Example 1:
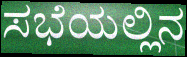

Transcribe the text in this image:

ಸಭೆಯಲ್ಲಿನ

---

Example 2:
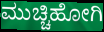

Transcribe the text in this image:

ಮುಚ್ಚಿಹೋಗಿ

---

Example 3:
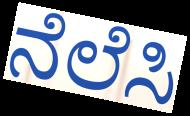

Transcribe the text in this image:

ನೆಲೆಸಿ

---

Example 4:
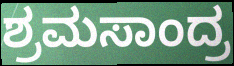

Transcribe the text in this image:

ಶ್ರಮಸಾಂದ್ರ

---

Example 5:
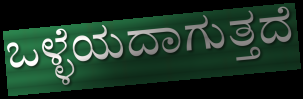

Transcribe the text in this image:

ಒಳ್ಳೆಯದಾಗುತ್ತದೆ